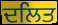
ਦਲਿਤ